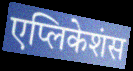
एप्लिकेशंस